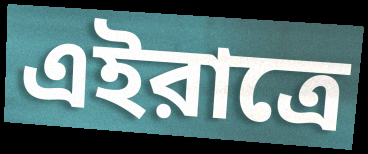
এইরাত্রে